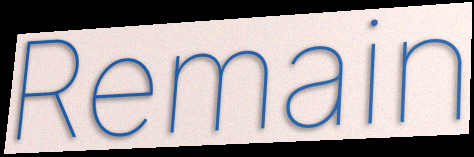
Remain